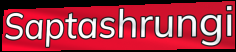
Saptashrungi